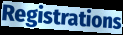
Registrations